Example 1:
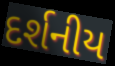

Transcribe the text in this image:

દર્શનીય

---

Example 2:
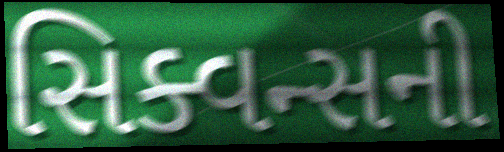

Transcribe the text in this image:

સિક્વન્સની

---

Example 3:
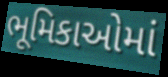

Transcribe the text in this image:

ભૂમિકાઓમાં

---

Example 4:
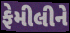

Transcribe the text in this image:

ફેમીલીને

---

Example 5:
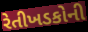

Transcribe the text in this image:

રેતીખડકોની